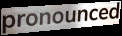
pronounced